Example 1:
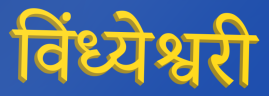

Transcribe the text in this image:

विंध्येश्वरी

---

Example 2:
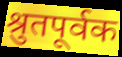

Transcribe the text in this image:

श्रुतपूर्वक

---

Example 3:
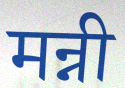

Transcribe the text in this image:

मन्नी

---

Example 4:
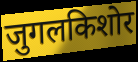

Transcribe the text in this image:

जुगलकिशोर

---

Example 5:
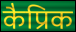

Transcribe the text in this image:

कैप्रिक